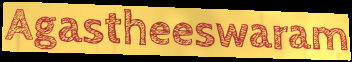
Agastheeswaram